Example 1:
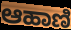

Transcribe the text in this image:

ಆಹಾಣಿ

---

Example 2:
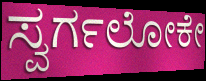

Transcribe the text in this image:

ಸ್ವರ್ಗಲೋಕೇ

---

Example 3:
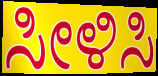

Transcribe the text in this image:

ಸೀಳಿಸಿ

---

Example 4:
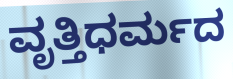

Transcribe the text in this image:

ವೃತ್ತಿಧರ್ಮದ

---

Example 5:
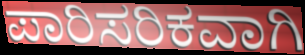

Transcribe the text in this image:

ಪಾರಿಸರಿಕವಾಗಿ